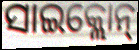
ସାଇକ୍ଲୋନ୍